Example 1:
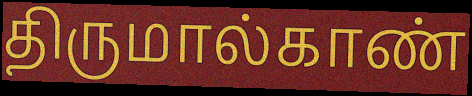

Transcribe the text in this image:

திருமால்காண்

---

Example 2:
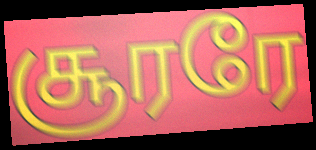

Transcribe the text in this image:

சூரரே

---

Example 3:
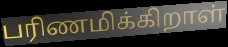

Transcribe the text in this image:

பரிணமிக்கிறாள்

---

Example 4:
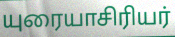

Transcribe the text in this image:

யுரையாசிரியர்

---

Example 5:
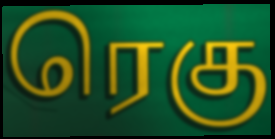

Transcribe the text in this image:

ரெகு